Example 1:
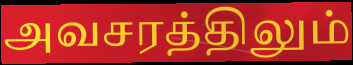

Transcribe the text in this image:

அவசரத்திலும்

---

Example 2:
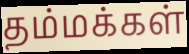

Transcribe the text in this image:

தம்மக்கள்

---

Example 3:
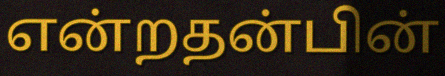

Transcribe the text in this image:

என்றதன்பின்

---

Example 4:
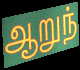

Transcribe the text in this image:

ஆறுந்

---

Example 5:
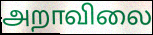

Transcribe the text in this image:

அறாவிலை